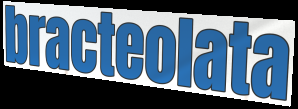
bracteolata